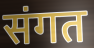
संगत